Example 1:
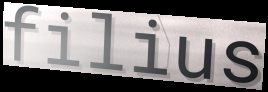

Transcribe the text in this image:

filius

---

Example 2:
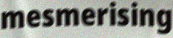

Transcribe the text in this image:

mesmerising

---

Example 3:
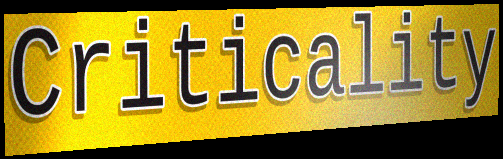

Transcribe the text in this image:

Criticality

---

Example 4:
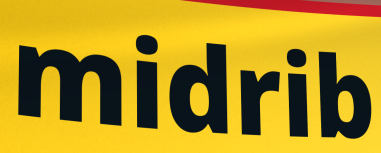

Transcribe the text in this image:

midrib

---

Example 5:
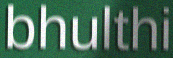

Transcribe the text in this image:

bhulthi